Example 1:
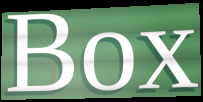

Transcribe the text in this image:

Box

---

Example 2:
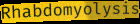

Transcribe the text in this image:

Rhabdomyolysis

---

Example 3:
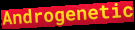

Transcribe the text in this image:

Androgenetic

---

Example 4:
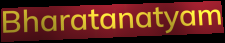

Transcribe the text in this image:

Bharatanatyam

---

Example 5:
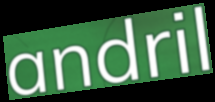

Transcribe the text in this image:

andril